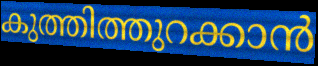
കുത്തിത്തുറക്കാൻ